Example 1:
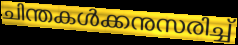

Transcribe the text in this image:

ചിന്തകൾക്കനുസരിച്ച്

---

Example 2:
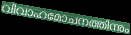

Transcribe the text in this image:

വിവാഹമോചനത്തിന്നും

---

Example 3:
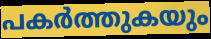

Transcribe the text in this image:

പകർത്തുകയും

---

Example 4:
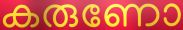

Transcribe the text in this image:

കരുണോ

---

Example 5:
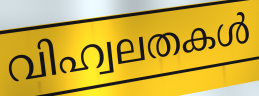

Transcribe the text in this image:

വിഹ്വലതകൾ